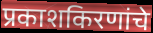
प्रकाशकिरणांचे